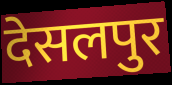
देसलपुर